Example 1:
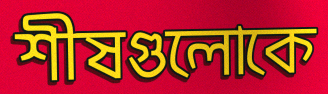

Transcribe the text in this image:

শীষগুলোকে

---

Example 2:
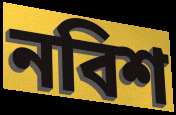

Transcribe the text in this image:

নবিশ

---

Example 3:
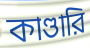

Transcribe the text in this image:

কাণ্ডারি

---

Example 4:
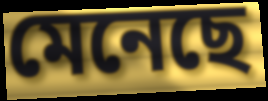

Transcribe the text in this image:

মেনেছে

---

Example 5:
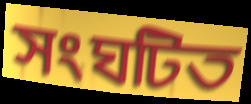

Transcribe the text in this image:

সংঘটিত